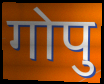
गोपु